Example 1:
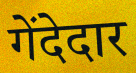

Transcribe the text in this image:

गेंदेदार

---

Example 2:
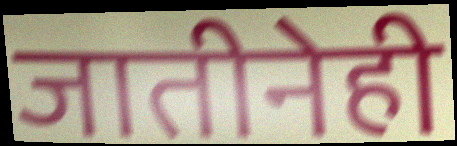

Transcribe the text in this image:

जातीनेही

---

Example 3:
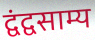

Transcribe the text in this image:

द्वंद्वसाम्य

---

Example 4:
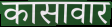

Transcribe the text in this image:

कासावार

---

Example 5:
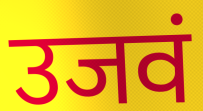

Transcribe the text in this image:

उजवं